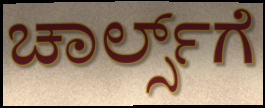
ಚಾರ್ಲ್ಸ್‌ಗೆ